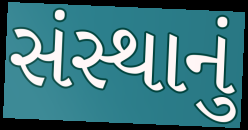
સંસ્થાનું